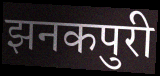
झनकपुरी